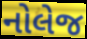
નોલેજ